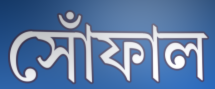
সোঁফাল